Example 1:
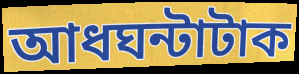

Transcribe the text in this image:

আধঘন্টাটাক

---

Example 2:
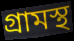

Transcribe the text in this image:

গ্রামস্থ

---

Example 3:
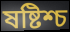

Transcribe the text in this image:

ষষ্টিশ্চ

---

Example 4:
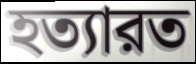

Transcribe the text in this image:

হত্যারত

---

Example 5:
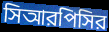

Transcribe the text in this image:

সিআরপিসির